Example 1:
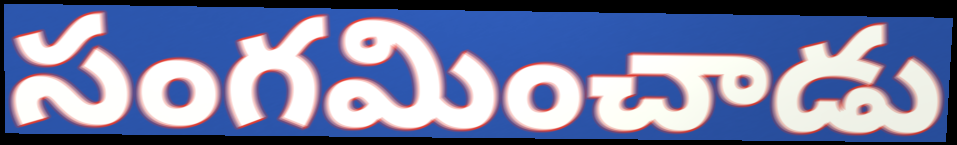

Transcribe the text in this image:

సంగమించాడు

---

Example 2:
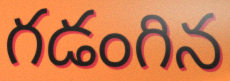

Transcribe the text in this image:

గడంగిన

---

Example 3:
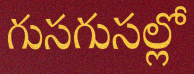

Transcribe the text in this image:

గుసగుసల్లో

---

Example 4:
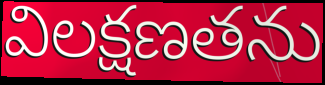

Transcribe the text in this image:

విలక్షణతను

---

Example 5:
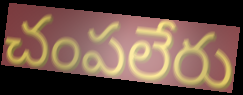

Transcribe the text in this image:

చంపలేరు